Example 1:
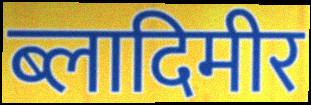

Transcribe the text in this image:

ब्लादिमीर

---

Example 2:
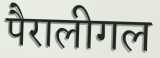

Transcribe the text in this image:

पैरालीगल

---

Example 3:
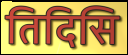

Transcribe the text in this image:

तिदिसि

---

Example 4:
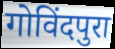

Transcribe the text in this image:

गोविंदपुरा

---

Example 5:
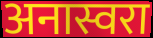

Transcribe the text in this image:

अनास्वरा